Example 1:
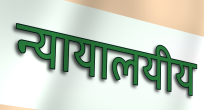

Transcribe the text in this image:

न्यायालयीय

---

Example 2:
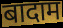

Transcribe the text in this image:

बादाम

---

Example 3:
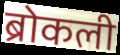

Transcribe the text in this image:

ब्रोकली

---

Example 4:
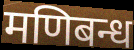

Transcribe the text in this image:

मणिबन्ध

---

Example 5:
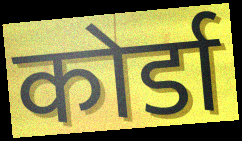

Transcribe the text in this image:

कोर्डा